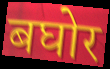
बघोर